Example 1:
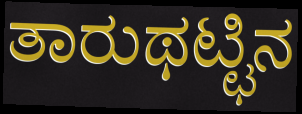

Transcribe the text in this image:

ತಾರುಥಟ್ಟಿನ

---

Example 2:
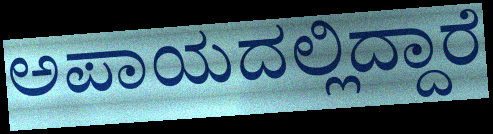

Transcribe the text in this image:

ಅಪಾಯದಲ್ಲಿದ್ದಾರೆ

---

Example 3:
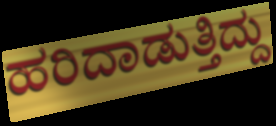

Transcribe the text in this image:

ಹರಿದಾಡುತ್ತಿದ್ದು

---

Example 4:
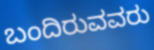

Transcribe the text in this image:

ಬಂದಿರುವವರು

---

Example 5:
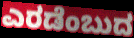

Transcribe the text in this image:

ಎರಡೆಂಬುದ